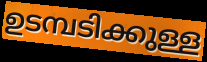
ഉടമ്പടിക്കുള്ള